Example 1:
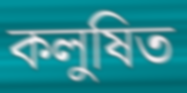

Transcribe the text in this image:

কলুষিত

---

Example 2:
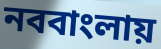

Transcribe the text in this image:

নববাংলায়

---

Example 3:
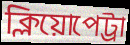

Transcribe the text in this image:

ক্লিয়োপেট্রা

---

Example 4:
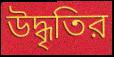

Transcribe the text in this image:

উদ্ধৃতির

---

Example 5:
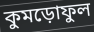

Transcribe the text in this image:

কুমড়োফুল